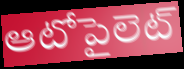
ఆటోపైలెట్